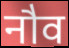
नौव